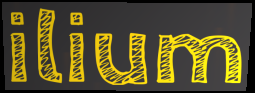
ilium